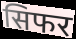
सिफर